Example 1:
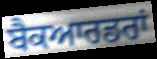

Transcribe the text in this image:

ਬੈਕਆਰਡਰਾਂ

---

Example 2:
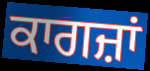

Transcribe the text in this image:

ਕਾਗਜ਼ਾਂ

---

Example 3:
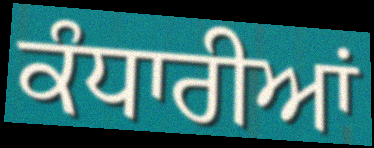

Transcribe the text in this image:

ਕੰਧਾਰੀਆਂ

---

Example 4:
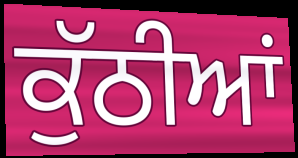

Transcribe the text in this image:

ਕੁੱਠੀਆਂ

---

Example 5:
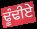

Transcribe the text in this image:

ਢੂੰਢੀਏ